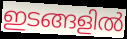
ഇടങ്ങളിൽ